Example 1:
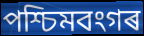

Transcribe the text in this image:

পশ্চিমবংগৰ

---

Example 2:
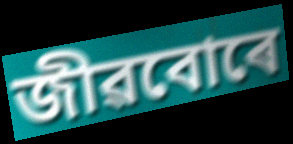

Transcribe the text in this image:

জীৱবোৰে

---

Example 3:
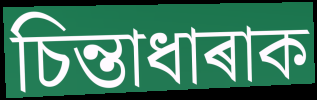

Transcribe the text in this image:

চিন্তাধাৰাক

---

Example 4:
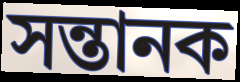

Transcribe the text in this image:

সন্তানক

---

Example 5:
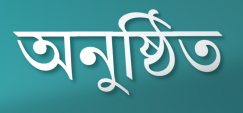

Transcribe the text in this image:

অনুষ্ঠিত